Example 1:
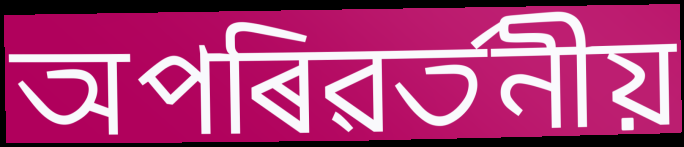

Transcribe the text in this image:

অপৰিৱৰ্তনীয়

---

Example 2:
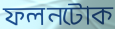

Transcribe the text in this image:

ফলনটোক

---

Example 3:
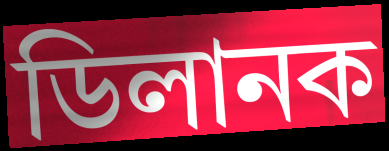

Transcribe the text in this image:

ডিলানক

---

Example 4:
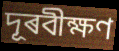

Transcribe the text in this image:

দূৰবীক্ষণ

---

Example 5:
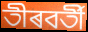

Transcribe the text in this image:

তীৰবৰ্তী